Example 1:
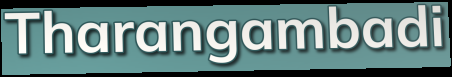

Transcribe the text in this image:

Tharangambadi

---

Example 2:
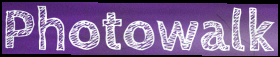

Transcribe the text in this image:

Photowalk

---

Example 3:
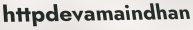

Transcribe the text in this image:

httpdevamaindhan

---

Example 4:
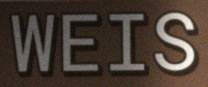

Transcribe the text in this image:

WEIS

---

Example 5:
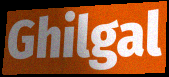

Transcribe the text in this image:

Ghilgal